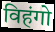
विहंगो